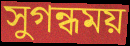
সুগন্ধময়